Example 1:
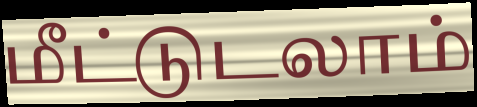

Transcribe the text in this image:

மீட்டுடலாம்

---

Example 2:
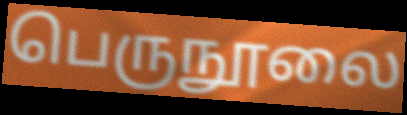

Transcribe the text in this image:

பெருநூலை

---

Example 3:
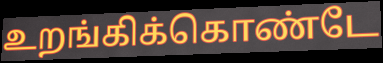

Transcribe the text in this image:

உறங்கிக்கொண்டே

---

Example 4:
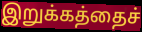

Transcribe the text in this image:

இறுக்கத்தைச்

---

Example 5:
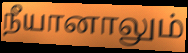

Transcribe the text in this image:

நீயானாலும்